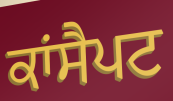
ਕਾਂਸੈਪਟ